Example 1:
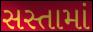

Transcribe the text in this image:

સસ્તામાં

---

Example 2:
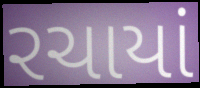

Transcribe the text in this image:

રચાયાં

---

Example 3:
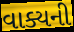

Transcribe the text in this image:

વાક્યની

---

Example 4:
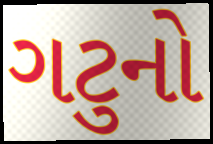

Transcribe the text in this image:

ગટુનો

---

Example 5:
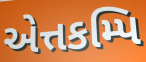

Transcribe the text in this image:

એત્તકમ્પિ